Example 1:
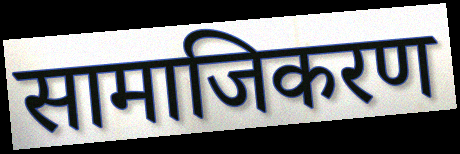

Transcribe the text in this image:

सामाजिकरण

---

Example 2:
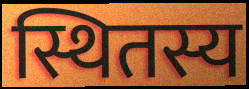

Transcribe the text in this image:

स्थितस्य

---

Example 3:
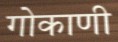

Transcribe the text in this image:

गोकाणी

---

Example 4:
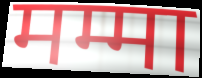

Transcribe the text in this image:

मम्मा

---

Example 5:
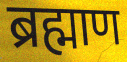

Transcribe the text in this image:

ब्रह्माण